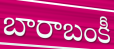
బారాబంకీ